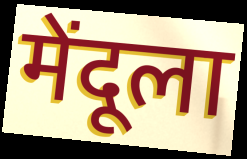
मेंदूला